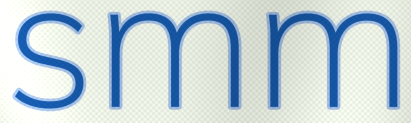
smm